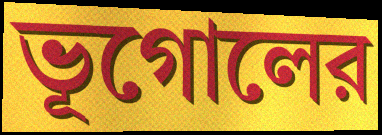
ভূগোলের